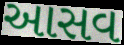
આસવ